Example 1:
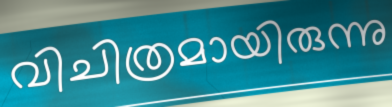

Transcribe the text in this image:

വിചിത്രമായിരുന്നു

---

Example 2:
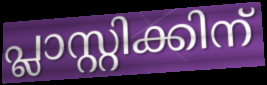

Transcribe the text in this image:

പ്ലാസ്റ്റിക്കിന്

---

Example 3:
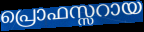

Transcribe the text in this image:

പ്രൊഫസ്സറായ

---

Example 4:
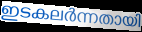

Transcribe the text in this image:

ഇടകലർന്നതായി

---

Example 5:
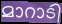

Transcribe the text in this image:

മാറാടി